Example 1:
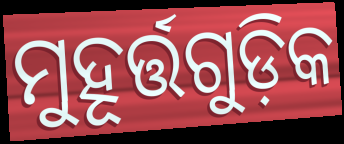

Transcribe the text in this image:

ମୁହୂର୍ତ୍ତଗୁଡ଼ିକ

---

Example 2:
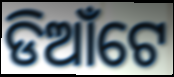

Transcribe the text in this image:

ଡିଆଁଟେ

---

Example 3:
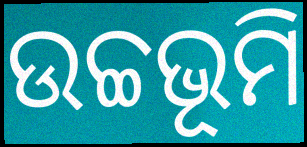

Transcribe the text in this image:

ଉଚ୍ଚଭୂମି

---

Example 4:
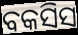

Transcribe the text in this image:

ବକସିସ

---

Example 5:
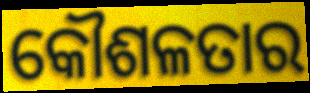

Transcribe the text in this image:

କୌଶଳତାର